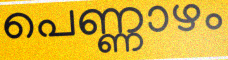
പെണ്ണാഴം